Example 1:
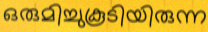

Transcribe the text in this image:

ഒരുമിച്ചുകൂടിയിരുന്ന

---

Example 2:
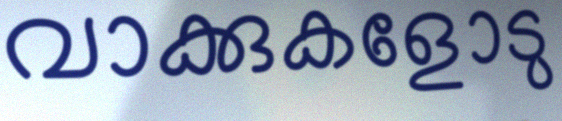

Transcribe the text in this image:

വാക്കുകളോടു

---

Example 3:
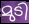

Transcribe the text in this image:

മുടി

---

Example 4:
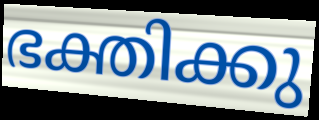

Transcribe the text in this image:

ഭക്തിക്കു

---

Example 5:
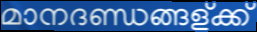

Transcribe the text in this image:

മാനദണ്ഡങ്ങള്ക്ക്